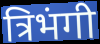
त्रिभंगी